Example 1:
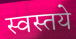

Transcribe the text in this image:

स्वस्तये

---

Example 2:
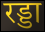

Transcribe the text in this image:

रड्डा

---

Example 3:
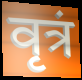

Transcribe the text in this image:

वृत्रं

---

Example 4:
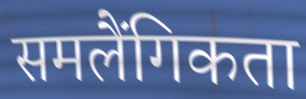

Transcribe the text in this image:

समलैंगिकता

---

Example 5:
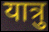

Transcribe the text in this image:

यात्रु